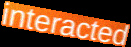
interacted